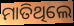
ମାତିଥିଲେ